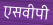
एसवीपी